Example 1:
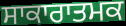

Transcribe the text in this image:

ਸਾਕਾਰਾਤਮਕ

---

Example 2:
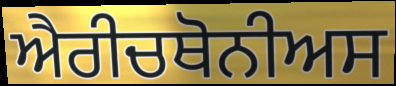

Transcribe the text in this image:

ਐਰੀਚਥੋਨੀਅਸ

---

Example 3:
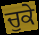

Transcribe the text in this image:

ਚੁਕੇ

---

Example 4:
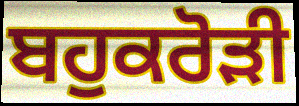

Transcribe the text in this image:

ਬਹੁਕਰੋੜੀ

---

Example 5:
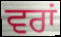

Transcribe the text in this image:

ਵਰਾਂ